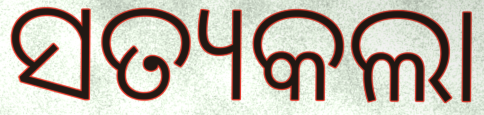
ସତ୍ୟକଲା